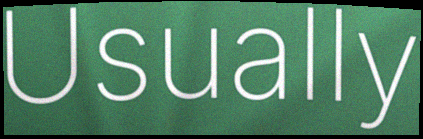
Usually